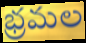
భ్రమల